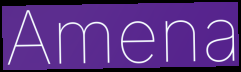
Amena